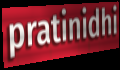
pratinidhi